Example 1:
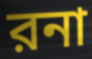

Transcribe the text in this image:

রনা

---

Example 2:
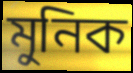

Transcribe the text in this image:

মুনিক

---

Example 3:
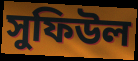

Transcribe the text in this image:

সুফিউল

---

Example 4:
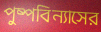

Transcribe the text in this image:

পুষ্পবিন্যাসের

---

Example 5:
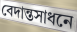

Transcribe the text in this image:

বেদান্তসাধনে